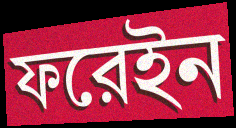
ফরেইন